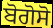
ਬੋਗੋਸੋ